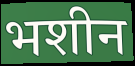
भशीन